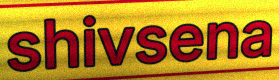
shivsena